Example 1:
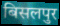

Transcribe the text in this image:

बिसलपुर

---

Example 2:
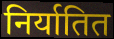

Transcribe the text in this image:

निर्यातित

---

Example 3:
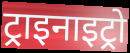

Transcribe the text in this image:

ट्राइनाइट्रो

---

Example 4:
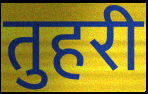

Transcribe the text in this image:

तुहरी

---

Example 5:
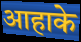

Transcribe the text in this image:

आहाके